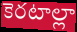
కెరటాల్లా